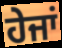
ਹੇਜਾਂ